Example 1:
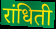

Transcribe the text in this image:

रांधिती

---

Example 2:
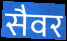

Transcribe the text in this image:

सैवर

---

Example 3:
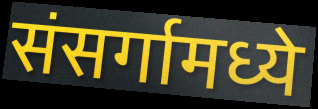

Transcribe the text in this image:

संसर्गामध्ये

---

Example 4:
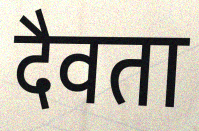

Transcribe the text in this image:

दैवता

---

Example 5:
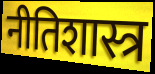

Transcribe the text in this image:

नीतिशास्त्र